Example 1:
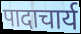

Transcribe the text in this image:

पादाचार्य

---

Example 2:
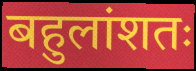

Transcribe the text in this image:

बहुलांशतः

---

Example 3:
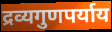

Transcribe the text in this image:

द्रव्यगुणपर्याय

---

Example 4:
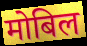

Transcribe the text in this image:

मोबिल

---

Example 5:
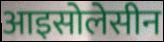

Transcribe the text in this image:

आइसोलेसीन